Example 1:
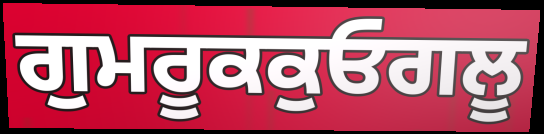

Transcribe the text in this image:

ਗੁਮਰੂਕਕੁਓਗਲੂ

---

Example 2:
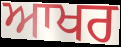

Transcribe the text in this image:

ਆਖਰ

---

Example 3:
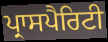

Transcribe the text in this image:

ਪ੍ਰਾਸਪੈਰਿਟੀ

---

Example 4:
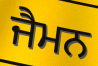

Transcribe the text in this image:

ਜੈਮਨ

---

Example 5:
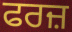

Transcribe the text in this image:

ਫਰਜ਼